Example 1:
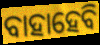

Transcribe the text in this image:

ବାହାହେବି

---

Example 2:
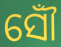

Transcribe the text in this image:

ସୌଁ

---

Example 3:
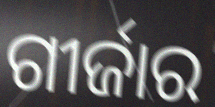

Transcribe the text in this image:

ଗୀର୍ଜାର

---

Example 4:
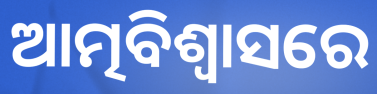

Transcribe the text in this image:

ଆତ୍ମବିଶ୍ଵାସରେ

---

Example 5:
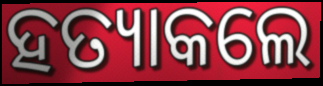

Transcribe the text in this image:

ହତ୍ୟାକଲେ